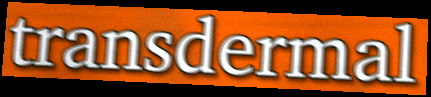
transdermal